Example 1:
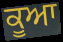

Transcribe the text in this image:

ਕੂਆ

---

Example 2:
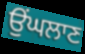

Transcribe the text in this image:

ਉਂਘਲਾਣ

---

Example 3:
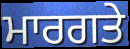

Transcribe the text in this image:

ਮਾਰਗਤੇ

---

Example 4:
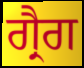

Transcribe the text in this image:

ਗ੍ਰੈਗ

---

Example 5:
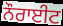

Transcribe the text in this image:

ਨੌਰਾਈਟ